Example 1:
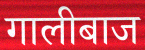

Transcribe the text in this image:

गालीबाज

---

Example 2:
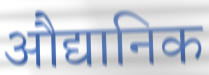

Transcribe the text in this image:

औद्यानिक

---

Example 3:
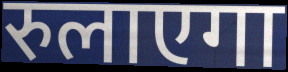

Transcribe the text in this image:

रुलाएगा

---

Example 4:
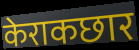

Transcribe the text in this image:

केराकछार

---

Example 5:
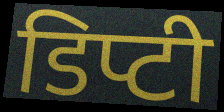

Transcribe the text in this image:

डिप्‍टी